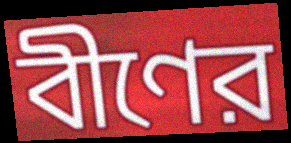
বীণের